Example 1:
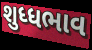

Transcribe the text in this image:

શુધ્ધભાવ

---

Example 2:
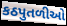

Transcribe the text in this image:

કઠપુતળીઓ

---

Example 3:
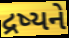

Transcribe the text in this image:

દ્રષ્યને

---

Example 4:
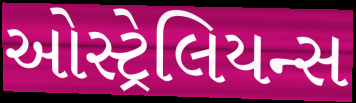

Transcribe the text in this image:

ઓસ્ટ્રેલિયન્સ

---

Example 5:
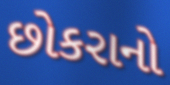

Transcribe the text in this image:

છોકરાનો